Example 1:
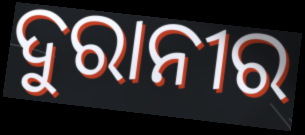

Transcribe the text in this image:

ଦୁରାନୀର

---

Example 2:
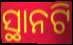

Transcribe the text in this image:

ସ୍ଥାନଟି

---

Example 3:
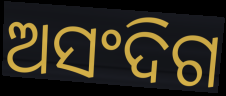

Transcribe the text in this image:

ଅସଂଦିଗ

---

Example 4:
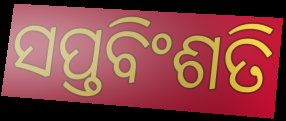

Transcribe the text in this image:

ସପ୍ତବିଂଶତି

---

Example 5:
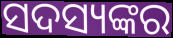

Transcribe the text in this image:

ସଦସ୍ୟଙ୍କର